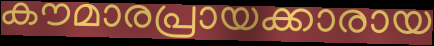
കൗമാരപ്രായക്കാരായ